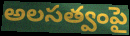
అలసత్వంపై